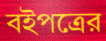
বইপত্রের